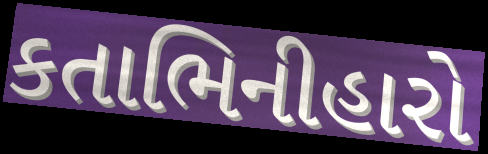
કતાભિનીહારો